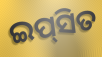
ଇପ୍‍ସିତ